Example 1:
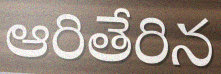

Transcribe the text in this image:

ఆరితేరిన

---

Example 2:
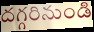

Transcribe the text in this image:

దగ్గరినుండి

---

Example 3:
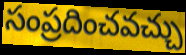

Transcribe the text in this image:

సంప్రదించవచ్చు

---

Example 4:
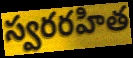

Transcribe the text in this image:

స్వరరహిత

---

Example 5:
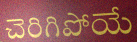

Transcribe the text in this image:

చెరిగిపోయే